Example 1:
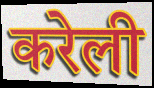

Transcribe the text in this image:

करेली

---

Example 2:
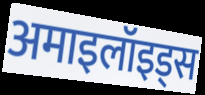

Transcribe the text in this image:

अमाइलॉइड्स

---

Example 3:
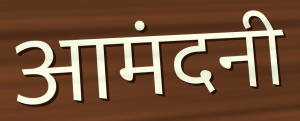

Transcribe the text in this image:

आमंदनी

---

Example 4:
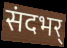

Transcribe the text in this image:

संदभर्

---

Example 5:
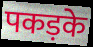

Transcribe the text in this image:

पकड़के